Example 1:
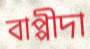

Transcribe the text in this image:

বাপ্পীদা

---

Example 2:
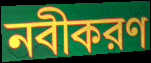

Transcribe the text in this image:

নবীকরণ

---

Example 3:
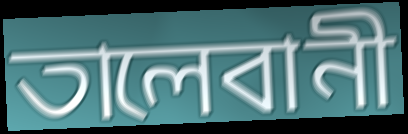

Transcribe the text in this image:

তালেবানী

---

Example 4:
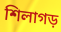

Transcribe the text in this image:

শিলাগড়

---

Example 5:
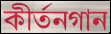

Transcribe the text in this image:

কীর্তনগান